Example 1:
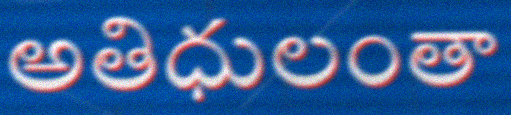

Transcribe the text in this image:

అతిధులంతా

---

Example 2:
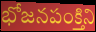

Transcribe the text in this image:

భోజనపంక్తిని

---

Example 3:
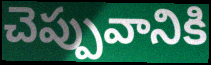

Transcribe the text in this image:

చెప్పువానికి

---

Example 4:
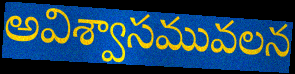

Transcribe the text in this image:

అవిశ్వాసమువలన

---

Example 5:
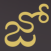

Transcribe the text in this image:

జో